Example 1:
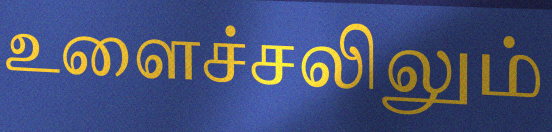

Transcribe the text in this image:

உளைச்சலிலும்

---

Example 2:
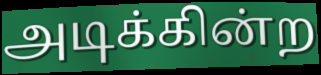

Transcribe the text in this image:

அடிக்கின்ற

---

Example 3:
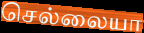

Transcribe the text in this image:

செல்லையா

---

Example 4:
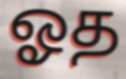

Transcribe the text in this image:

ஓத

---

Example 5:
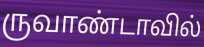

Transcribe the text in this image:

ருவாண்டாவில்